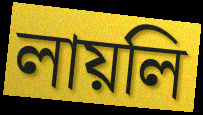
লায়লি